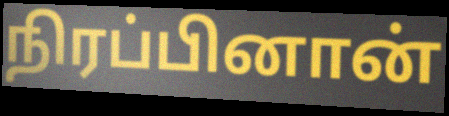
நிரப்பினான்